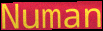
Numan